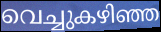
വെച്ചുകഴിഞ്ഞ